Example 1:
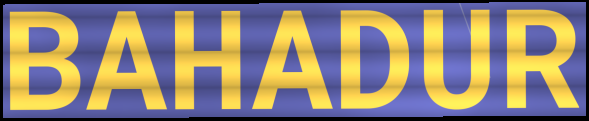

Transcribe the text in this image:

BAHADUR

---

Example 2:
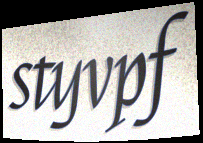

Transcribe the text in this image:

styvpf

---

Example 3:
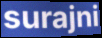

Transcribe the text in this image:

surajni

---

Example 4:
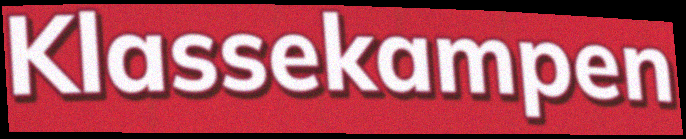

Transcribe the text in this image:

Klassekampen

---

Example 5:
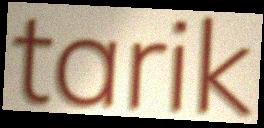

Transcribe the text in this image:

tarik